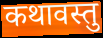
कथावस्तु